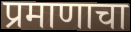
प्रमाणाचा